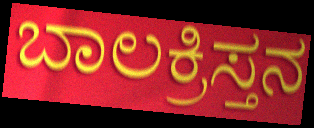
ಬಾಲಕ್ರಿಸ್ತನ